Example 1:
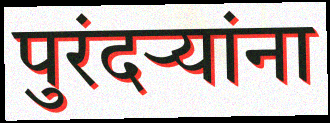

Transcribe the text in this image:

पुरंदऱ्यांना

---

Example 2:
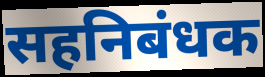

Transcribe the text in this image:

सहनिबंधक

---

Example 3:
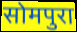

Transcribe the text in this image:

सोमपुरा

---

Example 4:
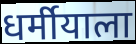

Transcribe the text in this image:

धर्मीयाला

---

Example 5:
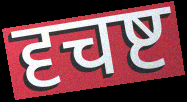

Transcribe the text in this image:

दृचष्ट